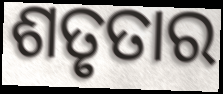
ଶତୃତାର